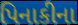
પિનાકીના